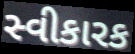
સ્વીકારક